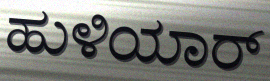
ಹುಳಿಯಾರ್